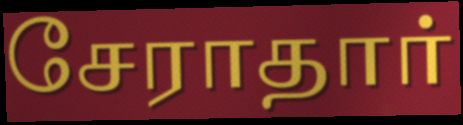
சேராதார்